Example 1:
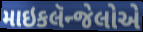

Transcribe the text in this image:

માઇકલૅન્જેલોએ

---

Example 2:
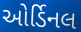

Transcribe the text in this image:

ઓર્ડિનલ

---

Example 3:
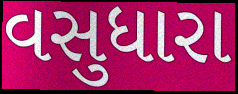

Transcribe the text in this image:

વસુધારા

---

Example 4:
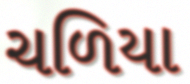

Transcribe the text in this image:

ચળિયા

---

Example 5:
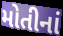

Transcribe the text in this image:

મોતીનાં